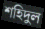
শহিদুল